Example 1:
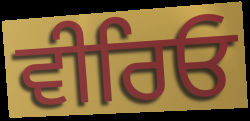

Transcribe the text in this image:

ਵੀਰਿਓ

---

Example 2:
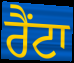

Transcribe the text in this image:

ਰੈਂਟਾ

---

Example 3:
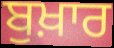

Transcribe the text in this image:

ਬੁਖ਼ਾਰ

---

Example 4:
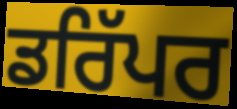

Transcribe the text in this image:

ਡਰਿੱਪਰ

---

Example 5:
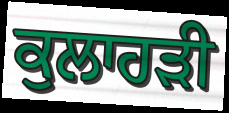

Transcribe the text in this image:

ਕੁਲਾਹੜੀ